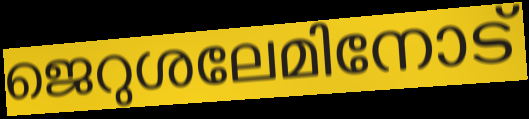
ജെറുശലേമിനോട്